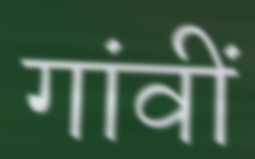
गांवीं